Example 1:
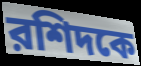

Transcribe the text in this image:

রশিদকে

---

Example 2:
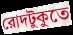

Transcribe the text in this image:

রোদটুকুতে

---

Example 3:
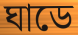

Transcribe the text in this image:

ঘাডে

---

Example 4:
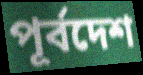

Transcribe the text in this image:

পূর্বদেশ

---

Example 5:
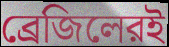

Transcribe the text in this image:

ব্রেজিলেরই